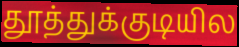
தூத்துக்குடியில